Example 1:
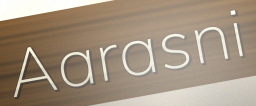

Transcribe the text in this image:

Aarasni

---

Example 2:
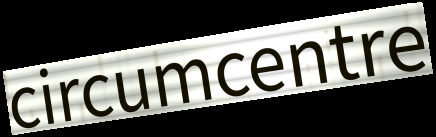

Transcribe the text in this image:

circumcentre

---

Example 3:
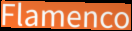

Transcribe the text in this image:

Flamenco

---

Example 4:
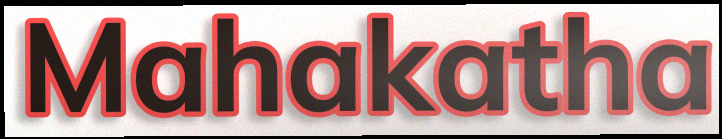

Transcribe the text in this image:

Mahakatha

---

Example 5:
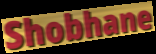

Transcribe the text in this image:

Shobhane